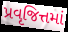
પ્રવૃજિત્તમાં